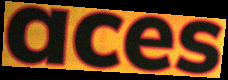
aces